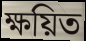
ক্ষয়িত